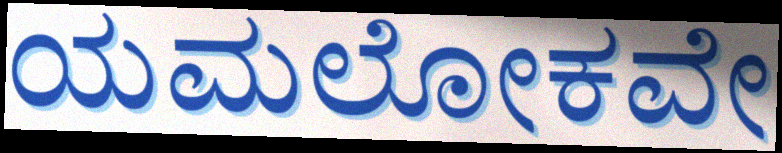
ಯಮಲೋಕವೇ